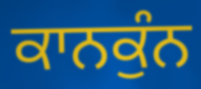
ਕਾਨਕੁੰਨ